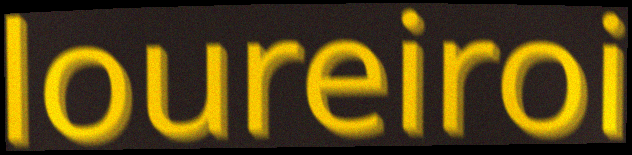
loureiroi